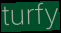
turfy